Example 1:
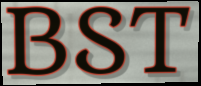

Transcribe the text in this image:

BST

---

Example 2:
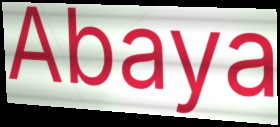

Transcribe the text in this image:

Abaya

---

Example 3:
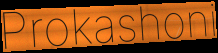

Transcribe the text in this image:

Prokashoni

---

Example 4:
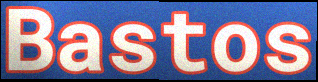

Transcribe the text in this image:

Bastos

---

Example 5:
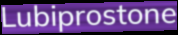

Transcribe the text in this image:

Lubiprostone